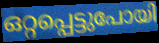
ഒറ്റപ്പെട്ടുപോയി